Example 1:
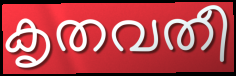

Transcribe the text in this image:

കൃതവതീ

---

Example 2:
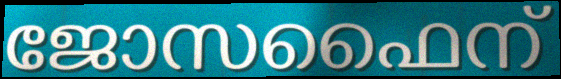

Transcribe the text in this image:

ജോസഫൈന്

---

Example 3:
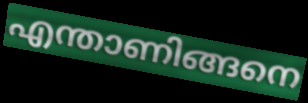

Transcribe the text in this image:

എന്താണിങ്ങനെ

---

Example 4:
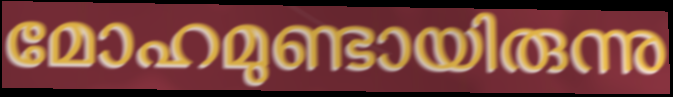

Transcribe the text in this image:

മോഹമുണ്ടായിരുന്നു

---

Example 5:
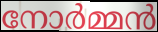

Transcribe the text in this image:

നോർമ്മൻ